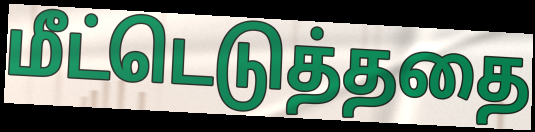
மீட்டெடுத்ததை